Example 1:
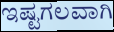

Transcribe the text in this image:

ಇಷ್ಟಗಲವಾಗಿ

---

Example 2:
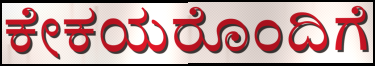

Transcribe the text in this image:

ಕೇಕಯರೊಂದಿಗೆ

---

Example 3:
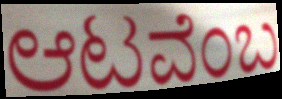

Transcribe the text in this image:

ಆಟವೆಂಬ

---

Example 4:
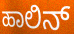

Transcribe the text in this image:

ಹಾಲಿನ್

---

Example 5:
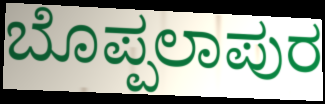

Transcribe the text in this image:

ಬೊಪ್ಪಲಾಪುರ